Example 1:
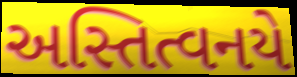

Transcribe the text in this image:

અસ્તિત્વનયે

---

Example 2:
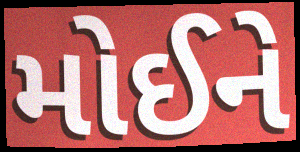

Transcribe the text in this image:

મોઈને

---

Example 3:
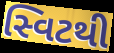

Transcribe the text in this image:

સ્વિટથી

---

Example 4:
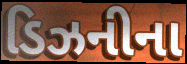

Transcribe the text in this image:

ડિઝનીના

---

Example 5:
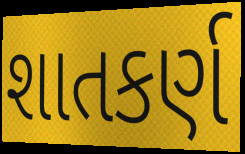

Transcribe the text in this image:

શાતકર્ણ